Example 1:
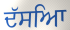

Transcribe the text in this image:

ਦੱਸਆਿ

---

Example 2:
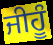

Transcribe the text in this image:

ਜੀਹੂੰ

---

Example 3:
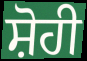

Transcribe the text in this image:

ਸ਼ੋਹੀ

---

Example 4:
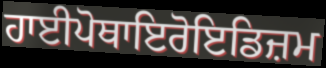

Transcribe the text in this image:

ਹਾਈਪੋਥਾਇਰੋਇਡਿਜ਼ਮ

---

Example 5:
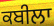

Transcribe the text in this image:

ਕਬੀਲਾ